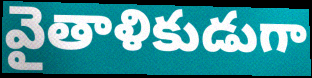
వైతాళికుడుగా